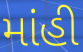
માંહી